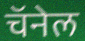
चॅनेल